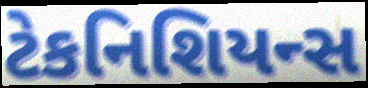
ટેકનિશિયન્સ